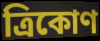
ত্রিকোণ